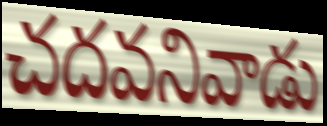
చదవనివాడు